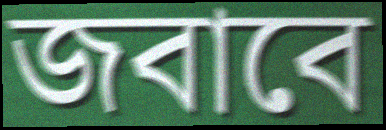
জবাবে